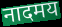
नादमय